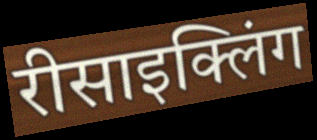
रीसाइक्लिंग